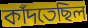
কাঁদতেছিল